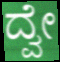
ದ್ವೇ